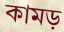
কামড়